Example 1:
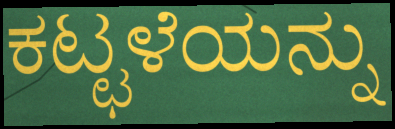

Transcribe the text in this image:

ಕಟ್ಟಳೆಯನ್ನು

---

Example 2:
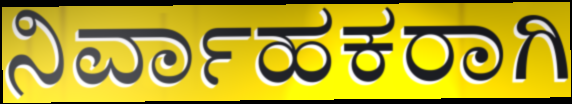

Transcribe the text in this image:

ನಿರ್ವಾಹಕರಾಗಿ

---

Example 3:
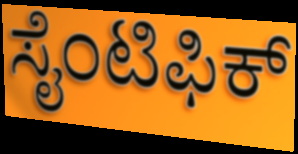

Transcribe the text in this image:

ಸೈಂಟಿಫಿಕ್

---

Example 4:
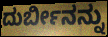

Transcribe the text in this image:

ದುರ್ಬೀನನ್ನು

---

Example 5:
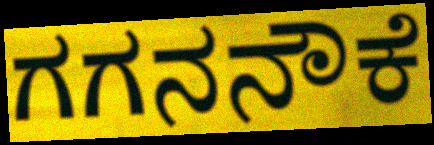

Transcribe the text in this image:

ಗಗನನೌಕೆ